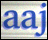
aaj